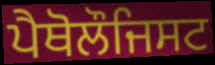
ਪੈਥੋਲੌਜਿਸਟ